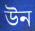
উন